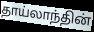
தாய்லாந்தின்